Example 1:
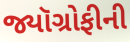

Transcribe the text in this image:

જ્યૉગ્રોફીની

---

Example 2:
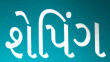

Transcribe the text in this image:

શેપિંગ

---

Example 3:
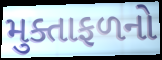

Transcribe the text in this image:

મુક્તાફળનો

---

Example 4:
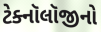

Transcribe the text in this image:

ટેક્નૉલૉજીનો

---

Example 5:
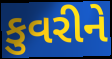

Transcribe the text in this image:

કુવરીને